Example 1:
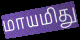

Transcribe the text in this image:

மாயமிது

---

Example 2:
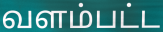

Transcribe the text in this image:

வளம்பட்ட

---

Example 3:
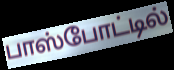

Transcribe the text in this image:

பாஸ்போட்டில்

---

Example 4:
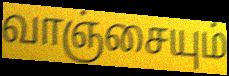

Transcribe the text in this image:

வாஞ்சையும்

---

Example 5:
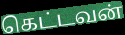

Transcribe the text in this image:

கெட்டவன்